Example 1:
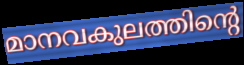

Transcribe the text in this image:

മാനവകുലത്തിന്റെ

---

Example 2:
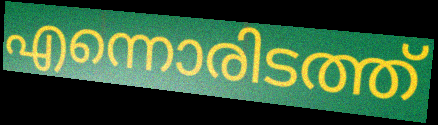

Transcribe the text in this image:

എന്നൊരിടത്ത്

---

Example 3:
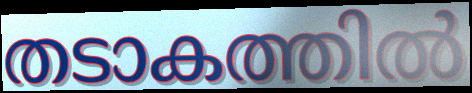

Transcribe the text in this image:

തടാകത്തിൽ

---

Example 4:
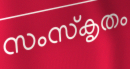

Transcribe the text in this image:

സംസ്കൃതം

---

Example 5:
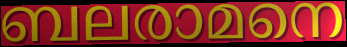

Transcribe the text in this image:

ബലരാമനെ